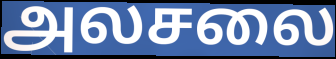
அலசலை